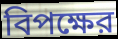
বিপক্ষের